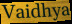
Vaidhya